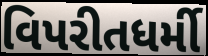
વિપરીતધર્મી